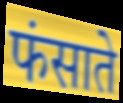
फंसाते